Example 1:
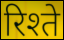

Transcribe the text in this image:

रिश्ते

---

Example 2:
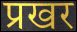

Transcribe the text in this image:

प्रखर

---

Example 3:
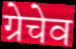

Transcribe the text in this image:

ग्रेचेव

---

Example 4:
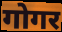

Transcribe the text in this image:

गोगर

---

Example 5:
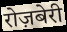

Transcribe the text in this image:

रोज़बेरी